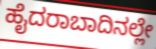
ಹೈದರಾಬಾದಿನಲ್ಲೇ